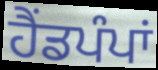
ਹੈਂਡਪੰਪਾਂ